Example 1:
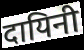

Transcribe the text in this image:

दायिनी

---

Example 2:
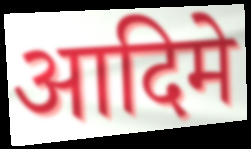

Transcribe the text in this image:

आदिमे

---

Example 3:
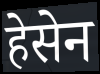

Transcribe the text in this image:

हेसेन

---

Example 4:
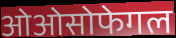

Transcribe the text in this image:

ओओसोफेगल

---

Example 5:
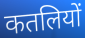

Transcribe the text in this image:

कतलियों